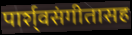
पार्श्वसंगीतासह